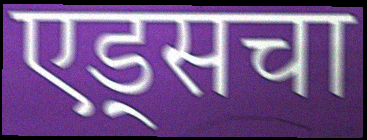
एड्सचा